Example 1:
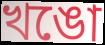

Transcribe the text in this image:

খঙো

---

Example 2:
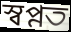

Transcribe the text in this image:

স্বপ্নত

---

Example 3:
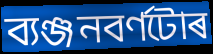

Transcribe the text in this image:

ব্যঞ্জনবৰ্ণটোৰ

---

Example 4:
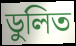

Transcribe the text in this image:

ডুলিত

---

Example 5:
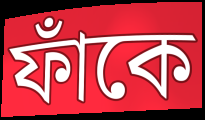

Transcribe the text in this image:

ফাঁকে